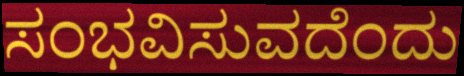
ಸಂಭವಿಸುವದೆಂದು